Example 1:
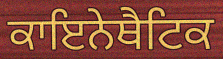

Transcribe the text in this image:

ਕਾਇਨੇਥੈਟਿਕ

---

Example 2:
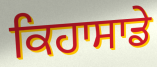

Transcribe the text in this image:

ਕਿਹਾਸਾਡੇ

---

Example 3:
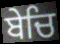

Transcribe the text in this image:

ਬੇਚਿ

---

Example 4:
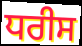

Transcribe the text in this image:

ਧਰੀਸ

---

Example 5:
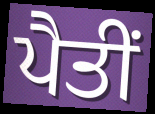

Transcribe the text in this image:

ਪੈਤੀਂ